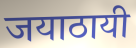
जयाठायी